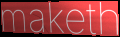
maketh